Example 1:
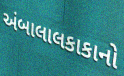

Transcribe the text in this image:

અંબાલાલકાકાનો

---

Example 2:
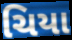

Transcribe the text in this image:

ચિયા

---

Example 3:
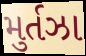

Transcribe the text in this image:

મુર્તઝા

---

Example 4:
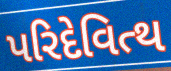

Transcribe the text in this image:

પરિદેવિત્થ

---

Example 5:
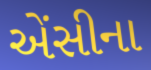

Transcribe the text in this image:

એંસીના